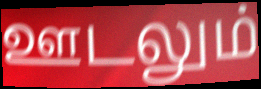
ஊடலும்